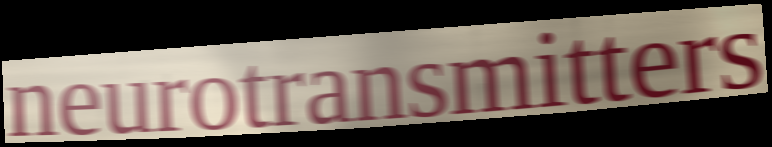
neurotransmitters